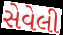
સેવેલી